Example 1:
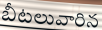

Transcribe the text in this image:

బీటలువారిన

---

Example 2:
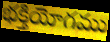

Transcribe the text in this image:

భక్తియోగము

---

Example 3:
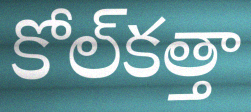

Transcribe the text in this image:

కోల్‌కత్తా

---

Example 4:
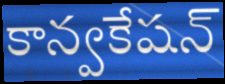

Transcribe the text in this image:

కాన్వకేషన్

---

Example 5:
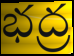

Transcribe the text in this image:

భద్ర